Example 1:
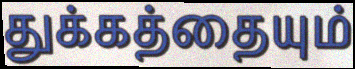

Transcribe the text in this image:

துக்கத்தையும்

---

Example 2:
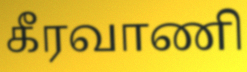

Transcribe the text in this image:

கீரவாணி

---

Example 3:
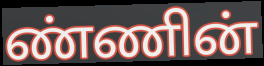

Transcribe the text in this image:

ண்ணின்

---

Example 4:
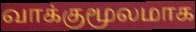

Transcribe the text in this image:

வாக்குமூலமாக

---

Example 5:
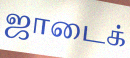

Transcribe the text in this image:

ஜாடைக்